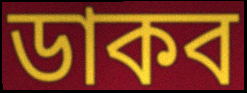
ডাকব